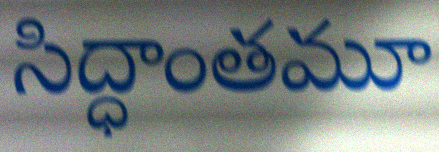
సిద్ధాంతమూ